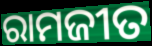
ରାମଜୀତ